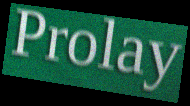
Prolay